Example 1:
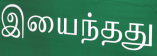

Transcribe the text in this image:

இயைந்தது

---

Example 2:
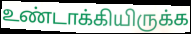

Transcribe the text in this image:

உண்டாக்கியிருக்க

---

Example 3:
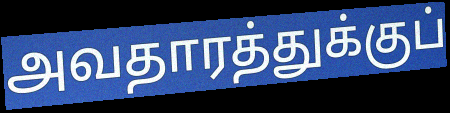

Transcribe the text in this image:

அவதாரத்துக்குப்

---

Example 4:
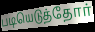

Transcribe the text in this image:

படியெடுத்தோர்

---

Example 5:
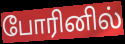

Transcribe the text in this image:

போரினில்